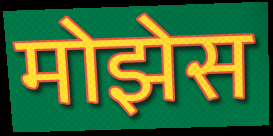
मोझेस